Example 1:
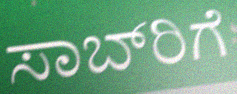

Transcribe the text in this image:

ಸಾಬ್‌ರಿಗೆ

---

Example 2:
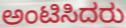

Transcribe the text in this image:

ಅಂಟಿಸಿದರು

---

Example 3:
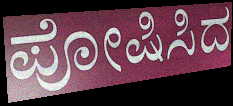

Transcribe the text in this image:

ಪೋಷಿಸಿದ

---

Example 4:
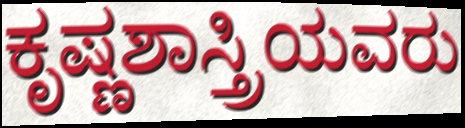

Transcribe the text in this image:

ಕೃಷ್ಣಶಾಸ್ತ್ರಿಯವರು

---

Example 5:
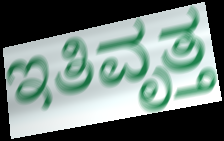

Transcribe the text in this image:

ಇತಿವೃತ್ತ